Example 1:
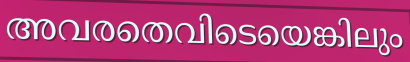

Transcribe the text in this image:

അവരതെവിടെയെങ്കിലും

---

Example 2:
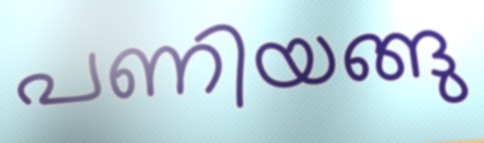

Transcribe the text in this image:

പണിയങ്ങു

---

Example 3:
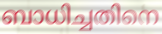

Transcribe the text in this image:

ബാധിച്ചതിനെ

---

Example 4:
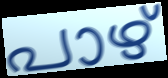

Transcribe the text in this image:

പാഴ്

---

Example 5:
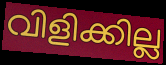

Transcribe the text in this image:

വിളിക്കില്ല